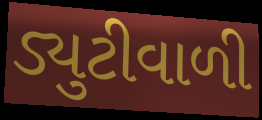
ડ્યુટીવાળી